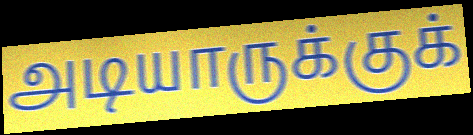
அடியாருக்குக்